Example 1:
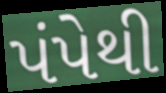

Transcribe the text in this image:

પંપેથી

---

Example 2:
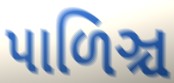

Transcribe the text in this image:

પાળિઞ્ચ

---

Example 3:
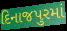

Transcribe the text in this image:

દિનાજપુરમાં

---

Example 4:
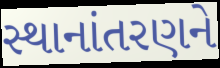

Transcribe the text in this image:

સ્થાનાંતરણને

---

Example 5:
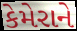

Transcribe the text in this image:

કેમેરાને